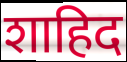
शाहिद